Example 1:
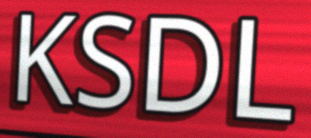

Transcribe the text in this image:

KSDL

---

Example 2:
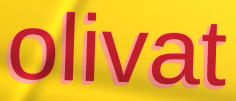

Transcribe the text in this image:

olivat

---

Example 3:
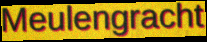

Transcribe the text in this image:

Meulengracht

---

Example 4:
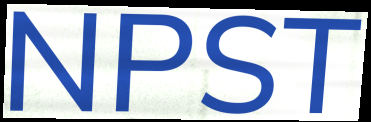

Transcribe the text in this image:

NPST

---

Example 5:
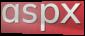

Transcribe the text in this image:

aspx